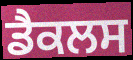
ਡੈਕਲਸ